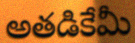
అతడికేమీ